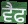
ਵੈਫ